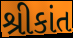
શ્રીકાંત